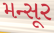
મન્સૂર